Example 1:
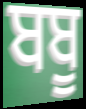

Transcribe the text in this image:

ਬਬੂ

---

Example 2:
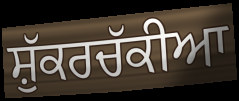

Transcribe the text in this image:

ਸ਼ੁੱਕਰਚੱਕੀਆ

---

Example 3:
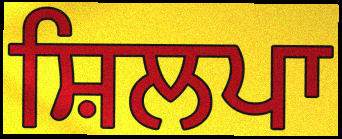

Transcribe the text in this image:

ਸ਼ਿਲਪਾ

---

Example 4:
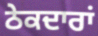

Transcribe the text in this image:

ਠੇਕਦਾਰਾਂ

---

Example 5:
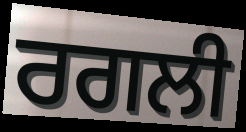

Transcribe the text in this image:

ਰਗਲੀ